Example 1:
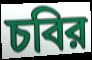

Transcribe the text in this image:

চবির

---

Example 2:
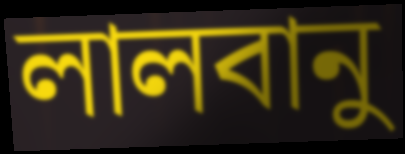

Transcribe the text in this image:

লালবানু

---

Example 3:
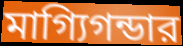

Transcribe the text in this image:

মাগ্যিগন্ডার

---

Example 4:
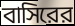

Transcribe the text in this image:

বাসিরের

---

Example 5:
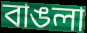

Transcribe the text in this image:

বাঙলা